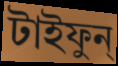
টাইফুন্